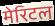
मेरिटल